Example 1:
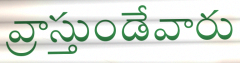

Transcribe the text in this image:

వ్రాస్తుండేవారు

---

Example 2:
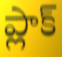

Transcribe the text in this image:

ప్లాక్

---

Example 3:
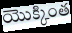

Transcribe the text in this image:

యొక్కింత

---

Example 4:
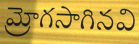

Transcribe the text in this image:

మ్రోగసాగినవి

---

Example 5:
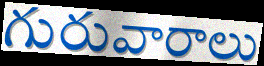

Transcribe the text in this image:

గురువారాలు